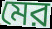
মের